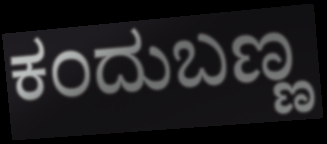
ಕಂದುಬಣ್ಣ